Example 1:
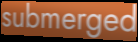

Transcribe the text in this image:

submerged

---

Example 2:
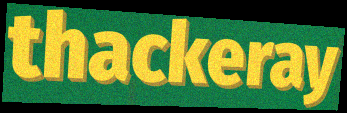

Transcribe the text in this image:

thackeray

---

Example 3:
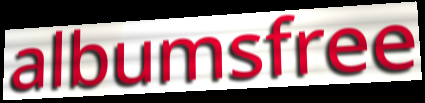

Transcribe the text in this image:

albumsfree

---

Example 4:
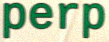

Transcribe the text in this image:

perp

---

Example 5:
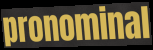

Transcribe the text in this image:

pronominal